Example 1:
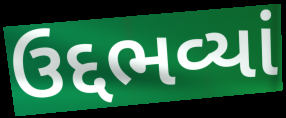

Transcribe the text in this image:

ઉદ્દભવ્યાં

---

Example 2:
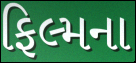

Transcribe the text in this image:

ફિલ્મના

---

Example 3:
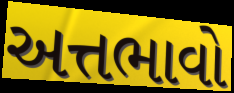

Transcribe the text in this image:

અત્તભાવો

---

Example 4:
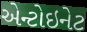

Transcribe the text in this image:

એન્ટોઇનેટ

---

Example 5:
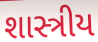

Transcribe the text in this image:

શાસ્ત્રીય